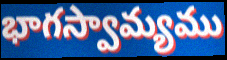
భాగస్వామ్యము